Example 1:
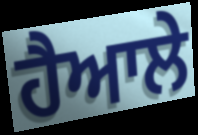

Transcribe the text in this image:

ਹੈਆਲੇ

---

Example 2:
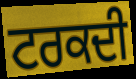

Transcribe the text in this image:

ਟਰਕਦੀ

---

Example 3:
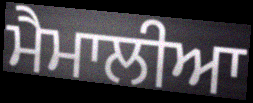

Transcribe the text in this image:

ਮੈਮਾਲੀਆ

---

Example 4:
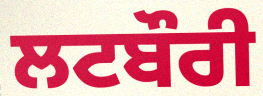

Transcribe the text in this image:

ਲਟਬੌਰੀ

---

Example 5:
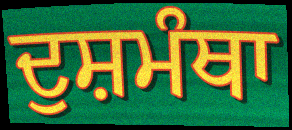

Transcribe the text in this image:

ਦੁਸ਼ਮੰਥਾ